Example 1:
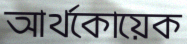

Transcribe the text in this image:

আর্থকোয়েক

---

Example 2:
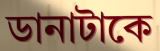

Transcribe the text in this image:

ডানাটাকে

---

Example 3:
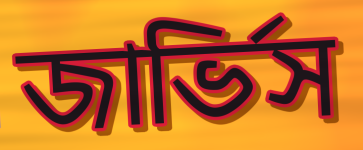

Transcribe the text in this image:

জার্ভিস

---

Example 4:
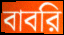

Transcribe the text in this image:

বাবরি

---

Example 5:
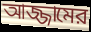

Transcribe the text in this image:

আজ্জামের